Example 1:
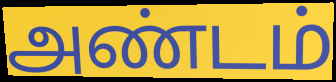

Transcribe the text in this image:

அண்டம்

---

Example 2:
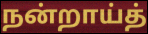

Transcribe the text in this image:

நன்றாய்த்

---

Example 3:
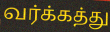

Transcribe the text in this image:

வர்க்கத்து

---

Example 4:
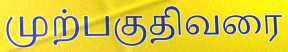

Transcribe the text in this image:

முற்பகுதிவரை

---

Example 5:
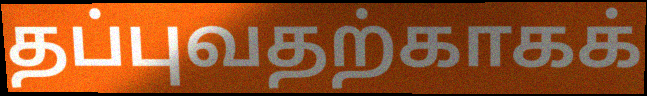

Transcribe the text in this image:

தப்புவதற்காகக்